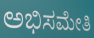
ಅಭಿಸಮೇತಿ